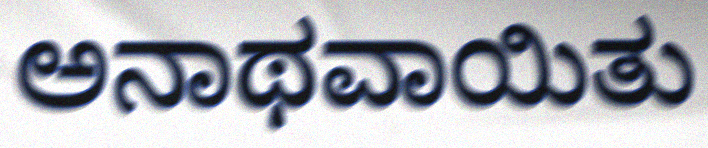
ಅನಾಥವಾಯಿತು